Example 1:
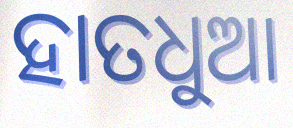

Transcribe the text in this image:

ହାତଧୁଆ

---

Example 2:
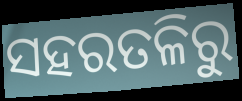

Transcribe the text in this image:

ସହରତଳିରୁ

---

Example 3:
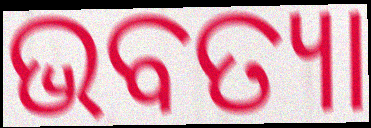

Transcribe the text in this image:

ଭବତ୍ୟା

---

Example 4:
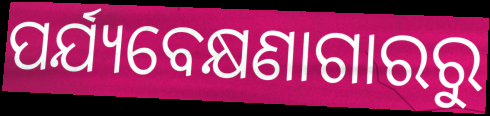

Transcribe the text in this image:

ପର୍ଯ୍ୟବେକ୍ଷଣାଗାରରୁ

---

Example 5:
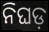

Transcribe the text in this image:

ନିଘଡ଼